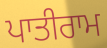
ਪਾਤੀਰਾਮ